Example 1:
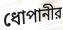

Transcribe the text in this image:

ধোপানীর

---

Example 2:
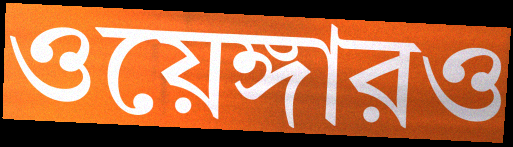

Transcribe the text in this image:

ওয়েঙ্গারও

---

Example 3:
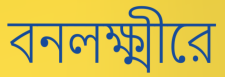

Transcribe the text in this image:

বনলক্ষ্মীরে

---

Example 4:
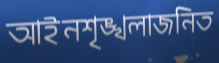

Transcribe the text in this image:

আইনশৃঙ্খলাজনিত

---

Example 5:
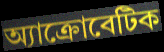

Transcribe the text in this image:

অ্যাক্রোবেটিক